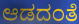
ಆಡದಂತೆ